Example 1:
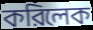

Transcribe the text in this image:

করিলেক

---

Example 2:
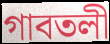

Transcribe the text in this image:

গাবতলী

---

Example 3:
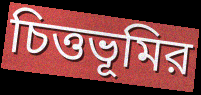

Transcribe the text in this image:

চিত্তভূমির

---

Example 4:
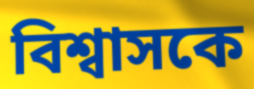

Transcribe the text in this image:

বিশ্বাসকে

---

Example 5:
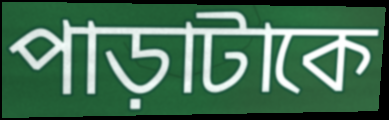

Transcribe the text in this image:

পাড়াটাকে